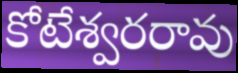
కోటేశ్వరరావు